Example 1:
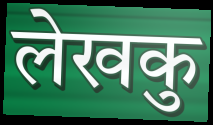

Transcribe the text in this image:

लेखकु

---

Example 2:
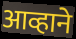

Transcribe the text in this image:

आव्हाने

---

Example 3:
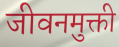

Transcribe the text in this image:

जीवनमुक्ती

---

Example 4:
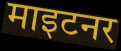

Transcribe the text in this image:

माइटनर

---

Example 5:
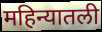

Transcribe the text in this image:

महिन्यातली